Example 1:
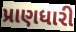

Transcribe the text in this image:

પ્રાણધારી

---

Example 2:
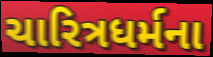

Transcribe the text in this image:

ચારિત્રધર્મના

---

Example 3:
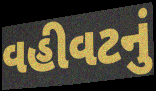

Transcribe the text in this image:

વહીવટનું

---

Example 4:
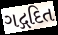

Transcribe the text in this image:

ગદ્ગદિત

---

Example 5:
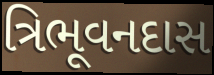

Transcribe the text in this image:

ત્રિભૂવનદાસ